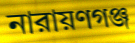
নারায়ণগঞ্জ